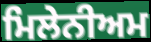
ਮਿਲੇਨੀਅਮ